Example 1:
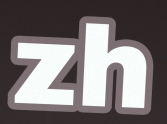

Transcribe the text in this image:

zh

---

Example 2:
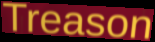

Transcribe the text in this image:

Treason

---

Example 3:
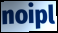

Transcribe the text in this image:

noipl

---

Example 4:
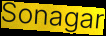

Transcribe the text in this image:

Sonagar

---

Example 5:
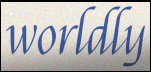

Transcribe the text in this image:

worldly